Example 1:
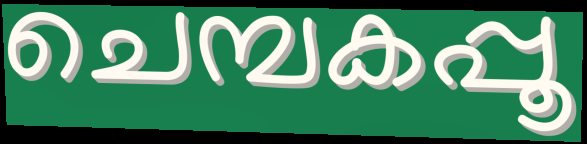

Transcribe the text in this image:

ചെമ്പകപ്പൂ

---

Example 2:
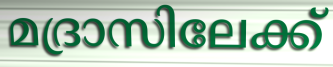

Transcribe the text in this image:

മദ്രാസിലേക്ക്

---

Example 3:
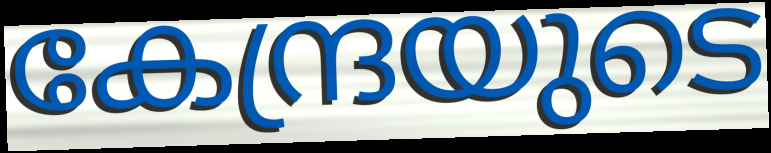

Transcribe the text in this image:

കേന്ദ്രയുടെ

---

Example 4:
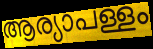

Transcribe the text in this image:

ആര്യാപള്ളം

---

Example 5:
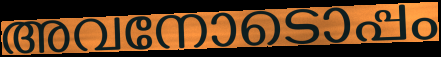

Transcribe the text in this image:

അവനോടൊപ്പം